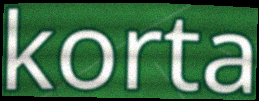
korta